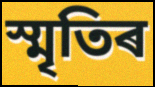
স্মৃতিৰ